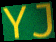
YJ